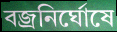
বজ্রনির্ঘোষে